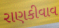
રાણકીવાવ